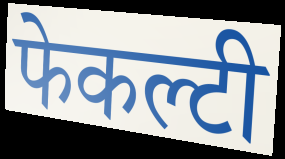
फेकल्टी